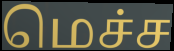
மெச்ச